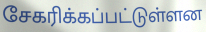
சேகரிக்கப்பட்டுள்ளன